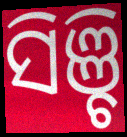
ସିଞ୍ଚି